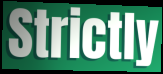
Strictly